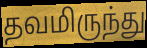
தவமிருந்து